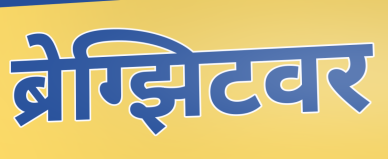
ब्रेग्झिटवर